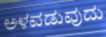
ಅಳವಡುವುದು